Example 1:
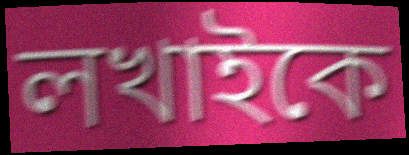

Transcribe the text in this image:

লখাইকে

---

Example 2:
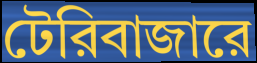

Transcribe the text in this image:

টেরিবাজারে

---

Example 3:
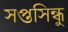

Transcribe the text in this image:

সপ্তসিন্ধু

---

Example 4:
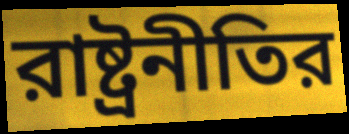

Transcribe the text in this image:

রাষ্ট্রনীতির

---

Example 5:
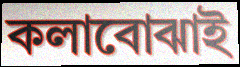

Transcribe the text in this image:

কলাবোঝাই